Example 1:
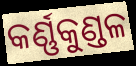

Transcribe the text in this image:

କର୍ଣ୍ଣକୁଣ୍ଡଳ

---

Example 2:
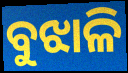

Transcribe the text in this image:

ବୁଝାଳି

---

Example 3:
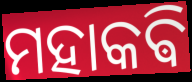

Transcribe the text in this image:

ମହାକଵି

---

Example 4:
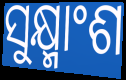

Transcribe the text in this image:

ସୁକ୍ଷ୍ମାଂଶ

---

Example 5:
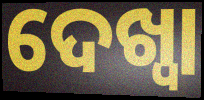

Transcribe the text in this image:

ଦେଖ୍ବା